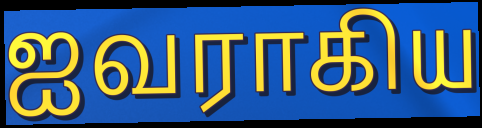
ஐவராகிய